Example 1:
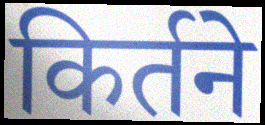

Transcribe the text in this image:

किर्तने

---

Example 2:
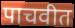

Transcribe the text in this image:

पाचवीत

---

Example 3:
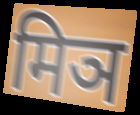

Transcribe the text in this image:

मिञ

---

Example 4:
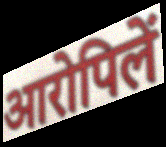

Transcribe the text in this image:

आरोपिलें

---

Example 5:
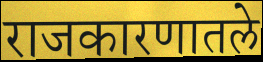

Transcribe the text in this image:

राजकारणातले